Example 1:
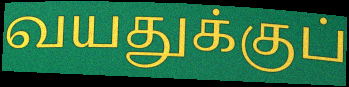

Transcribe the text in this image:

வயதுக்குப்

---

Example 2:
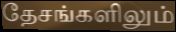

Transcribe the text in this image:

தேசங்களிலும்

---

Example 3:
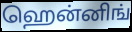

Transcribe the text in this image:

ஹென்னிங்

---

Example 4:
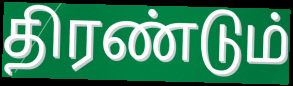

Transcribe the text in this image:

திரண்டும்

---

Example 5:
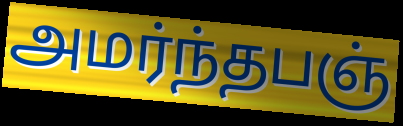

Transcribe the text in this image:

அமர்ந்தபஞ்